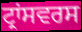
ਟ੍ਰਾਂਸਵਰਸ